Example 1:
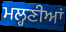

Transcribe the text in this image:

ਮਲ੍ਹਣੀਆਂ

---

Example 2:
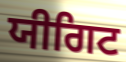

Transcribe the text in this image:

ਯੀਗਿਟ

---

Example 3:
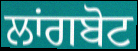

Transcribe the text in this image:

ਲਾਂਗਬੋਟ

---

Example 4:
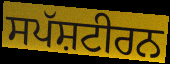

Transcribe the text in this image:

ਸਪੱਸ਼ਟੀਰਨ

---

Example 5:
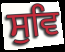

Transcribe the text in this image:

ਸੁਵਿ